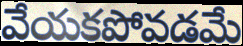
వేయకపోవడమే